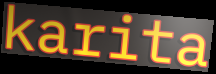
karita